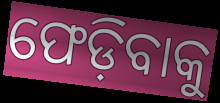
ଫେଡ଼ିବାକୁ